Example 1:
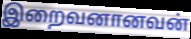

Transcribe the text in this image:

இறைவனானவன்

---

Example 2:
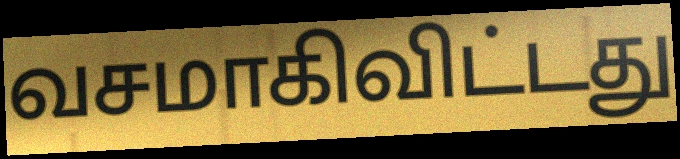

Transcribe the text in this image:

வசமாகிவிட்டது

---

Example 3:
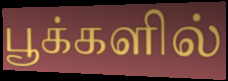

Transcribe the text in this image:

பூக்களில்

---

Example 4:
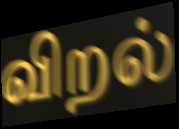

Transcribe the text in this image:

விறல்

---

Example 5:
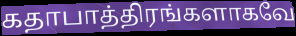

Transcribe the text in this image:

கதாபாத்திரங்களாகவே